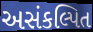
અસંકલ્પિત